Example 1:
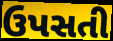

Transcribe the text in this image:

ઉપસતી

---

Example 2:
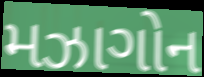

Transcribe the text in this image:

મઝાગોન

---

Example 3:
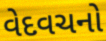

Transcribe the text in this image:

વેદવચનો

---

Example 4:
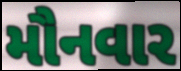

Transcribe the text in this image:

મૌનવાર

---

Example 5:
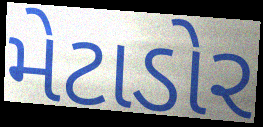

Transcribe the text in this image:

મેટાડોર